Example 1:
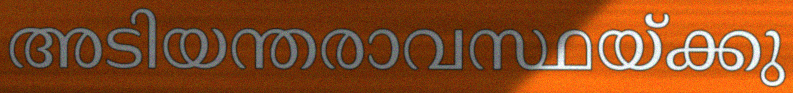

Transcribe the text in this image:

അടിയന്തരാവസ്ഥയ്ക്കു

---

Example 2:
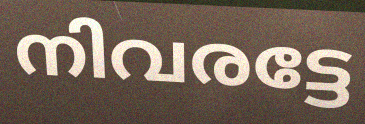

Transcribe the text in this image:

നിവരട്ടേ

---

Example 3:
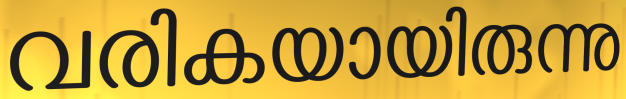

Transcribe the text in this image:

വരികയായിരുന്നു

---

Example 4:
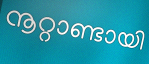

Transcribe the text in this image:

നൂറ്റാണ്ടായി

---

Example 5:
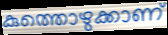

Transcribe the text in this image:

കുത്തൊഴുക്കാണ്